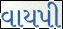
વાયપી